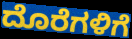
ದೊರೆಗಳಿಗೆ